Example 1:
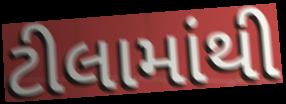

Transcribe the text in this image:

ટીલામાંથી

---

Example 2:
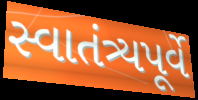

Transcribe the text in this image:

સ્વાતંત્ર્યપૂર્વે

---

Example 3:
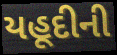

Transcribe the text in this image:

યહૂદીની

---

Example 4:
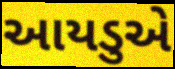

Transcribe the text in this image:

આયડુએ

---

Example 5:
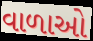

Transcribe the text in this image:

વાળાઓ